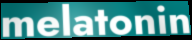
melatonin